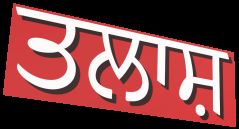
ਤਲਾਸ਼